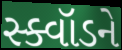
સ્ક્વૉડને